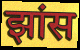
झांस